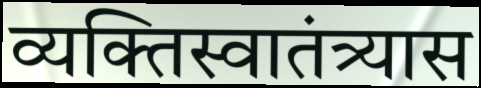
व्यक्तिस्वातंत्र्यास